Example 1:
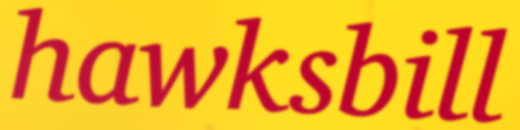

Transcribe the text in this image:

hawksbill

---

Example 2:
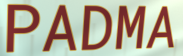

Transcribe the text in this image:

PADMA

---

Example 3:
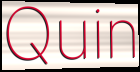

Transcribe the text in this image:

Quin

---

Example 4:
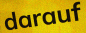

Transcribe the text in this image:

darauf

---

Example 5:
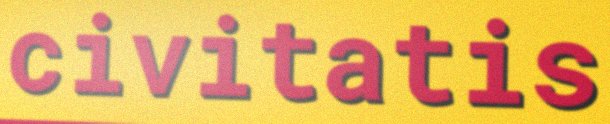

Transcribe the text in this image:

civitatis